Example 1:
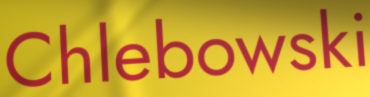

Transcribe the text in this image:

Chlebowski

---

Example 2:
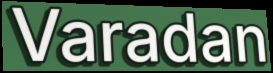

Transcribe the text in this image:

Varadan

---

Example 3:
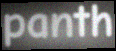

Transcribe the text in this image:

panth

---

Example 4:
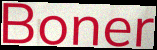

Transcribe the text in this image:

Boner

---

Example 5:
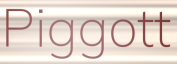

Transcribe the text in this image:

Piggott